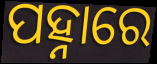
ପହ୍ନାରେ